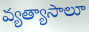
వ్యత్యాసాలూ